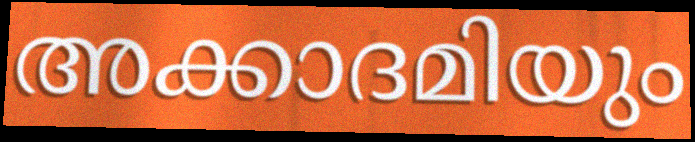
അക്കാദമിയും